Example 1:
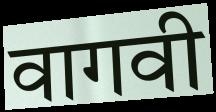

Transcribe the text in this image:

वागवी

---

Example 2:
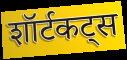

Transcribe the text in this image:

शॉर्टकट्स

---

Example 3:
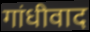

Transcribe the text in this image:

गांधीवाद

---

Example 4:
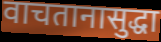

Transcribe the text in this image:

वाचतानासुद्धा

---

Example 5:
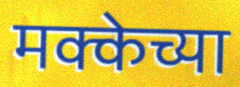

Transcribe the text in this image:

मक्केच्या